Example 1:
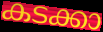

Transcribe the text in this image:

കടക്കാ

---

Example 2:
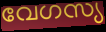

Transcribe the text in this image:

വേഗസ്യ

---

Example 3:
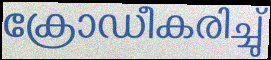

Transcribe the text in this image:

ക്രോഡീകരിച്ചു്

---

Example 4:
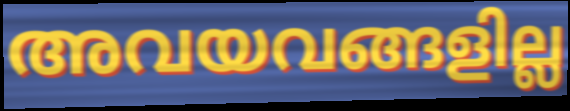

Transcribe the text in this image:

അവയവങ്ങളില്ല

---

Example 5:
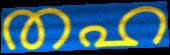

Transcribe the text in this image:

തഹ